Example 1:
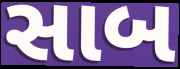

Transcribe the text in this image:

સાબ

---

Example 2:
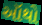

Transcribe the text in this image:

ઑથો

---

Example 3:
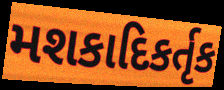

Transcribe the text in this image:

મશકાદિકર્તૃક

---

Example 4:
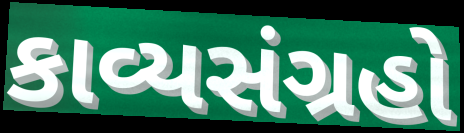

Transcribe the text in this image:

કાવ્યસંગ્રહો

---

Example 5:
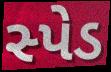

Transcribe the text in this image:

સ્પેડ